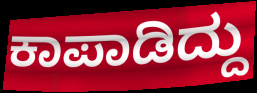
ಕಾಪಾಡಿದ್ದು